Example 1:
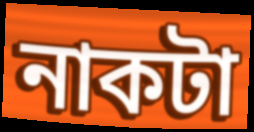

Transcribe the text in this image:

নাকটা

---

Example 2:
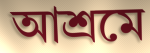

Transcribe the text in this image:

আশ্রমে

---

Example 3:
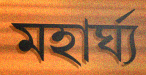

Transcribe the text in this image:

মহার্ঘ্য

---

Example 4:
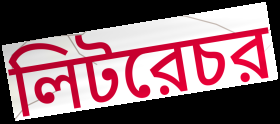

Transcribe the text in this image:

লিটরেচর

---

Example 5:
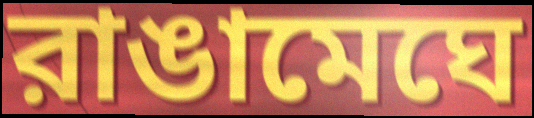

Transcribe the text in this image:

রাঙামেঘে